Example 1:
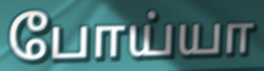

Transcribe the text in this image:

போய்யா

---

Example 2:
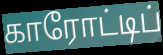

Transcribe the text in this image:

காரோட்டிப்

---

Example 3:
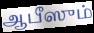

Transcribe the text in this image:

ஆபீஸும்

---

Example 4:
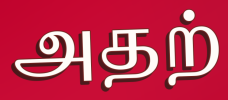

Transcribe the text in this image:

அதற்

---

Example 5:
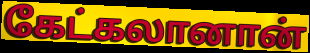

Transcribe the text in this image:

கேட்கலானான்